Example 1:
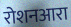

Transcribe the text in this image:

रोशनआरा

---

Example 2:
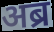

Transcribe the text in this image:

अब्र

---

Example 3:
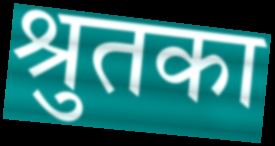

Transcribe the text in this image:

श्रुतका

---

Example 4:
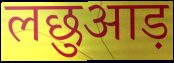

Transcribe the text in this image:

लछुआड़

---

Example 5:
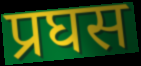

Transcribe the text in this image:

प्रघस